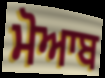
ਮੋਆਬ